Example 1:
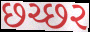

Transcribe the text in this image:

છચ્છર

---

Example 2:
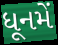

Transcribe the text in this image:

ધૂનમેં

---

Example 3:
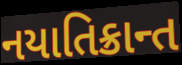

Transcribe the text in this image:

નયાતિક્રાન્ત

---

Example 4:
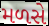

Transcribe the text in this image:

મળસે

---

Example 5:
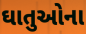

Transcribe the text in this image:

ઘાતુઓના